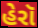
હેરૉ